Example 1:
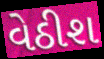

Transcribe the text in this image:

વેઠીશ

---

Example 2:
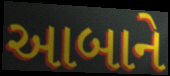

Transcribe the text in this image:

આબાને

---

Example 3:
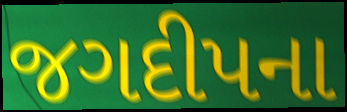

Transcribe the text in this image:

જગદીપના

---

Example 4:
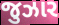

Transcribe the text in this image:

જુઝાર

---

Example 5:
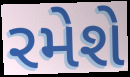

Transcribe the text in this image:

રમેશે